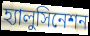
হ্যালুসিনেশন